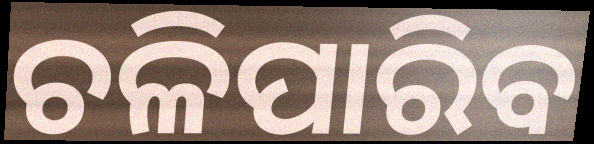
ଚଳିପାରିବ